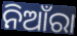
ନିଆଁରା